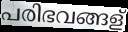
പരിഭവങ്ങള്